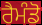
ਰੈਮੰਡੋ